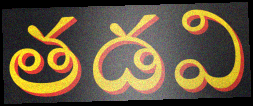
తడవి